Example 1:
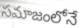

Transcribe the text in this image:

సమాజంలోనే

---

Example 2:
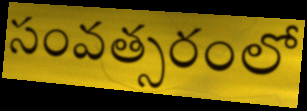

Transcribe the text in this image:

సంవత్సరంలో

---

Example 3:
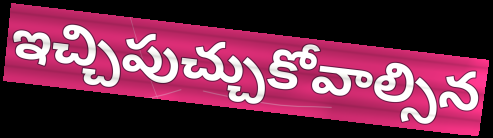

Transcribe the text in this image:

ఇచ్చిపుచ్చుకోవాల్సిన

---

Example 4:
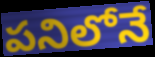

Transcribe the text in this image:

పనిలోనే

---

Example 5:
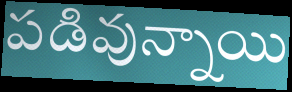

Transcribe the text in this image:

పడివున్నాయి